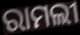
ରାମଲୀ